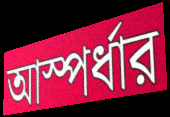
আস্পর্ধার